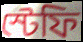
স্টেফি